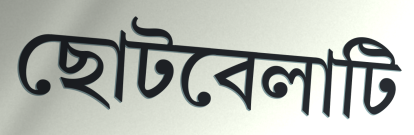
ছোটবেলাটি